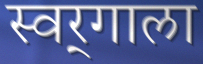
स्वर्गाला